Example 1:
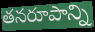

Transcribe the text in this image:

తనరూపాన్ని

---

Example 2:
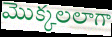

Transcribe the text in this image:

మొక్కలలాగా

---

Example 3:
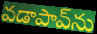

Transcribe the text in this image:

వడాపావ్‌ను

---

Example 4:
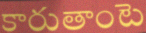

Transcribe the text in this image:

కారుతాంటె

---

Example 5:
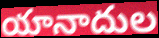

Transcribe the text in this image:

యానాదుల